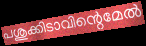
പശുക്കിടാവിന്റെമേൽ